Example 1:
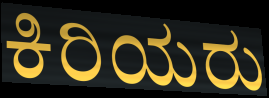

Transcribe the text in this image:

ಕಿರಿಯರು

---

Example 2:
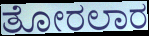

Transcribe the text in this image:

ತೋರಲಾರ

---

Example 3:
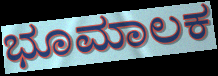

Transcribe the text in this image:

ಭೂಮಾಲಕ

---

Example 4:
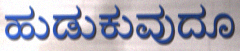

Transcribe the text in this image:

ಹುಡುಕುವುದೂ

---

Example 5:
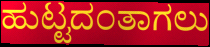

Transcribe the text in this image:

ಹುಟ್ಟದಂತಾಗಲು